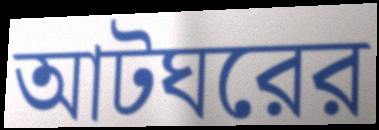
আটঘরের